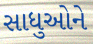
સાધુઓને